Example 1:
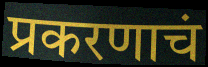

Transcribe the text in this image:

प्रकरणाचं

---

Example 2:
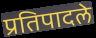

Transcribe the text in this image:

प्रतिपादले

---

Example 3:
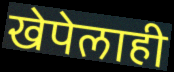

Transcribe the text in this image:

खेपेलाही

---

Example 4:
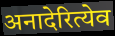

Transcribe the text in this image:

अनादेरित्येव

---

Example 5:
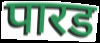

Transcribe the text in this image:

पारड